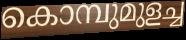
കൊമ്പുമുളച്ച